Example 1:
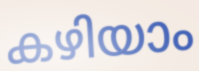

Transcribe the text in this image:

കഴിയാം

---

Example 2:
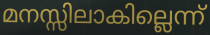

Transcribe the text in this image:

മനസ്സിലാകില്ലെന്ന്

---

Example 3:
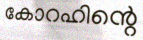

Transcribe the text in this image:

കോറഹിന്റെ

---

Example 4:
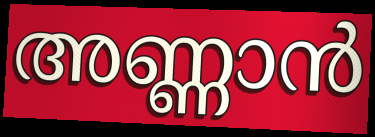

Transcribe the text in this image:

അണ്ണാൻ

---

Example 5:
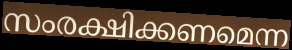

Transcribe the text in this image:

സംരക്ഷിക്കണമെന്ന